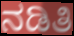
ನಡಿತಿ